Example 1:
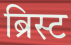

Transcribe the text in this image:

ब्रिस्ट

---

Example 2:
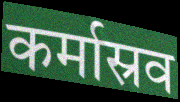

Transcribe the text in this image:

कर्मास्रव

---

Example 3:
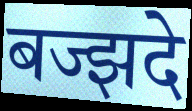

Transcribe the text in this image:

बज्झदे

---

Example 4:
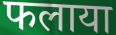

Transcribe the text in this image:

फलाया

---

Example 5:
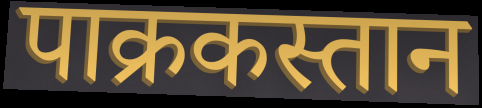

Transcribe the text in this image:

पाक्रकस्तान